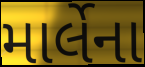
માર્લેના